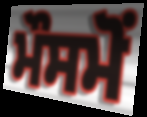
ਮੌਸਮੋਂ